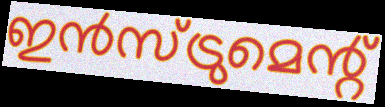
ഇൻസ്ട്രുമെന്റ്